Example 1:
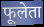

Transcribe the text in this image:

फूलेता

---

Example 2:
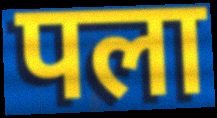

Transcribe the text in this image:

पला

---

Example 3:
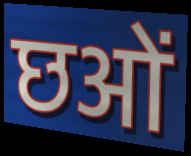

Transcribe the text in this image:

छओं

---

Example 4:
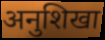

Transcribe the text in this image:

अनुशिखा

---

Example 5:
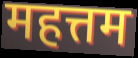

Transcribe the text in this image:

महत्तम